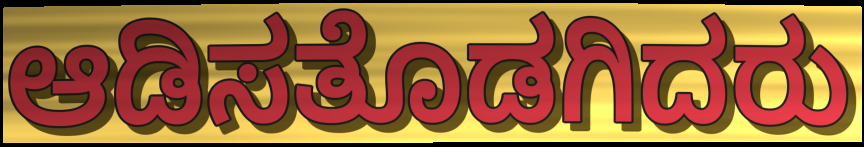
ಆಡಿಸತೊಡಗಿದರು